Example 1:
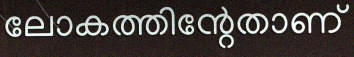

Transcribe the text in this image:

ലോകത്തിന്റേതാണ്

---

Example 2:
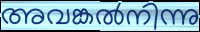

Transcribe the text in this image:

അവങ്കൽനിന്നു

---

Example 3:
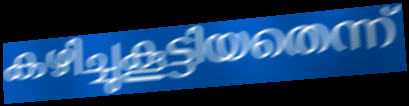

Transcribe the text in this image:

കഴിച്ചുകൂട്ടിയതെന്ന്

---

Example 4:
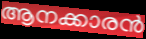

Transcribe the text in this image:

ആനക്കാരൻ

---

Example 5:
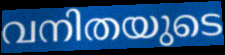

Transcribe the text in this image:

വനിതയുടെ